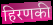
हिरणकी